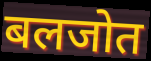
बलजोत